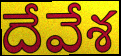
దేవేశ